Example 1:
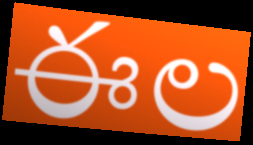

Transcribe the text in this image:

ఈల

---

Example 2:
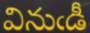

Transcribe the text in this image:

వినుఁడీ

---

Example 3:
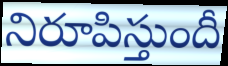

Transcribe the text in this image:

నిరూపిస్తుందీ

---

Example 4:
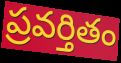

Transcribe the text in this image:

ప్రవర్తితం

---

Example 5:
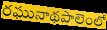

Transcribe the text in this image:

రఘునాథపాలెంలో